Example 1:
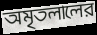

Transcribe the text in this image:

অমৃতলালের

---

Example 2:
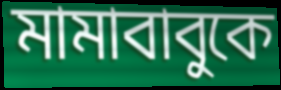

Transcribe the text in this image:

মামাবাবুকে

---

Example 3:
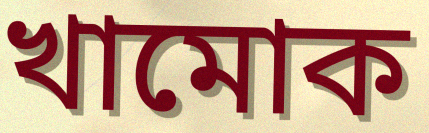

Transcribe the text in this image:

খামোক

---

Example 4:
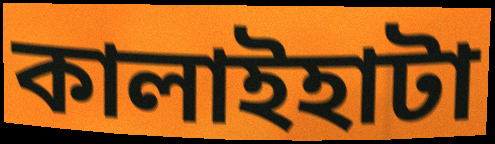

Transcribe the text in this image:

কালাইহাটা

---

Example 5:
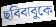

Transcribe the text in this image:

ছবিবাবুকে